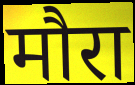
मौरा